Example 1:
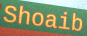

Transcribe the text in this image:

Shoaib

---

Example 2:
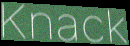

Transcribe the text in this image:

Knack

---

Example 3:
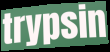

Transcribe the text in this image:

trypsin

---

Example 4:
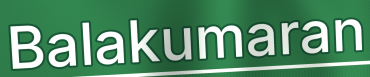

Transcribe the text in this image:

Balakumaran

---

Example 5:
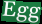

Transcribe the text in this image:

Egg